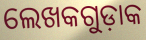
ଲେଖକଗୁଡ଼ାକ